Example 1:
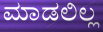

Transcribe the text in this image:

ಮಾಡಲಿಲ್ಲ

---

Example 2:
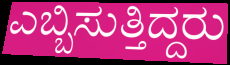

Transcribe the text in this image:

ಎಬ್ಬಿಸುತ್ತಿದ್ದರು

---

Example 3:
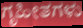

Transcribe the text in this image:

ಗೃಹೀತಗಳು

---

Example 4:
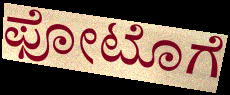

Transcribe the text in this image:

ಫೋಟೊಗೆ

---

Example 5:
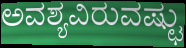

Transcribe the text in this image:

ಅವಶ್ಯವಿರುವಷ್ಟು